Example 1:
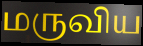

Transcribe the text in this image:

மருவிய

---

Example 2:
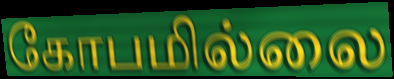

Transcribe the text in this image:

கோபமில்லை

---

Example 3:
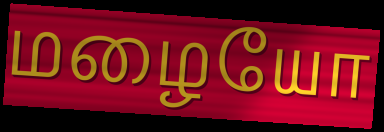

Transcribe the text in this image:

மழையோ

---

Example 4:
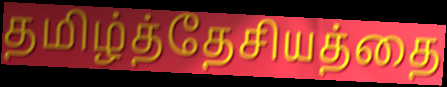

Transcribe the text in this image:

தமிழ்த்தேசியத்தை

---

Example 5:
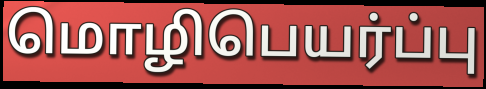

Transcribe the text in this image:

மொழிபெயர்ப்பு